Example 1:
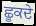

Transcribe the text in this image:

ਛੂਕਦੇ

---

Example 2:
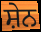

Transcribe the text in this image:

ਸ਼ੇਨ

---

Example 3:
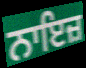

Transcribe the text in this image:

ਨਾਇਜ਼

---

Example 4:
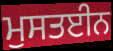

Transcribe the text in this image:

ਮੁਸਤਈਨ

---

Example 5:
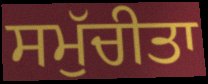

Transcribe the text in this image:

ਸਮੁੱਚੀਤਾ